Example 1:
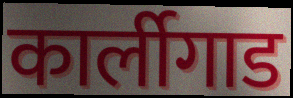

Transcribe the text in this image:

कार्लीगाड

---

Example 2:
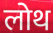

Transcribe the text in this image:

लोथ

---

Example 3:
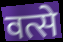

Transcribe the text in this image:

वत्से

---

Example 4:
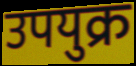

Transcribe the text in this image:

उपयुक्र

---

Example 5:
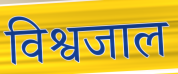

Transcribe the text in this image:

विश्वजाल